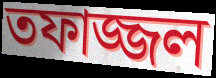
তফাজ্জল